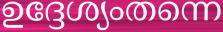
ഉദ്ദേശ്യംതന്നെ